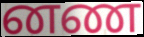
னண